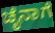
ಚೈನಾಗೆ